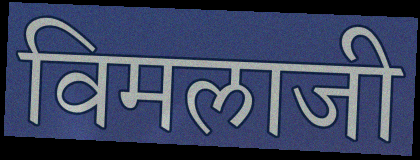
विमलाजी